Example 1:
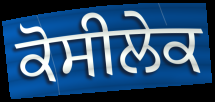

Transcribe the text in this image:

ਕੋਸੀਲੇਕ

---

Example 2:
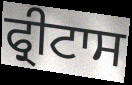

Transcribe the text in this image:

ਫ੍ਰੀਟਾਸ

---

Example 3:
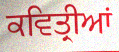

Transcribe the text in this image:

ਕਵਿਤ੍ਰੀਆਂ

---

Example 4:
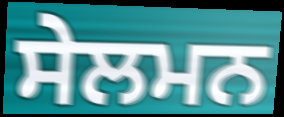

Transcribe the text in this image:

ਸੇਲਮਨ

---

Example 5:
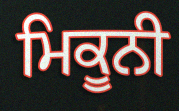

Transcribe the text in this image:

ਮਿਕੂਨੀ